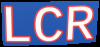
LCR